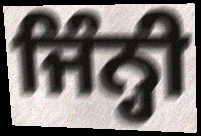
ਜਿੰਨ੍ਹੀ